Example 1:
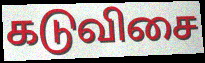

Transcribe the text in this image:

கடுவிசை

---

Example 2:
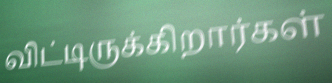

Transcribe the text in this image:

விட்டிருக்கிறார்கள்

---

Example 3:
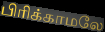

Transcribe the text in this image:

பிரிக்காமலே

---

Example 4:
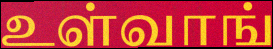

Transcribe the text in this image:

உள்வாங்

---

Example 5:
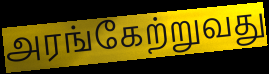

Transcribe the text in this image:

அரங்கேற்றுவது